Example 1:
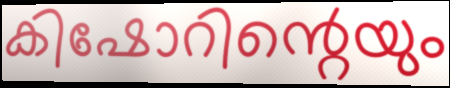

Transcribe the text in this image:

കിഷോറിന്റെയും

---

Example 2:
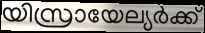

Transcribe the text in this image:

യിസ്രായേല്യർക്ക്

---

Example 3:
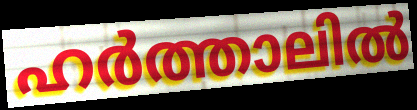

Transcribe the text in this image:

ഹർത്താലിൽ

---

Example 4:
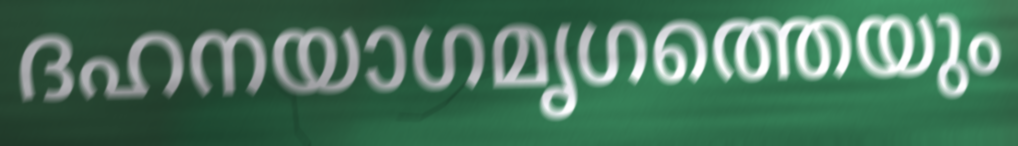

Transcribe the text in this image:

ദഹനയാഗമൃഗത്തെയും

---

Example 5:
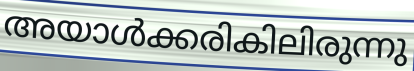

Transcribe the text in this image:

അയാൾക്കരികിലിരുന്നു